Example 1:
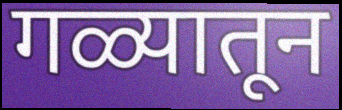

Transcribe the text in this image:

गळ्यातून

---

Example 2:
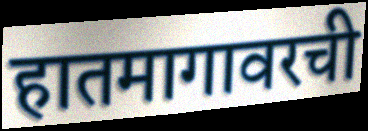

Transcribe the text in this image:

हातमागावरची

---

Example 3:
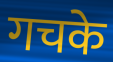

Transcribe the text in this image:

गचके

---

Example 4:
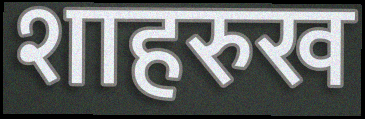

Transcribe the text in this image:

शाहरुख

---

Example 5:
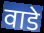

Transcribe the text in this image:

वाडे